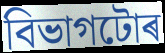
বিভাগটোৰ